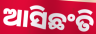
ଆସିଛଂତି